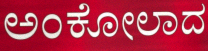
ಅಂಕೋಲಾದ